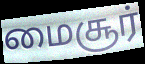
மைசூர்